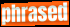
phrased